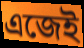
এজেই